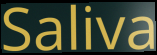
Saliva